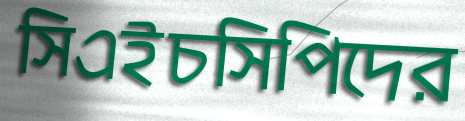
সিএইচসিপিদের